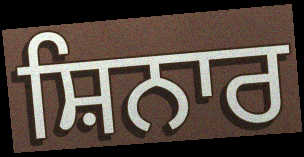
ਸ਼ਿਨਾਰ